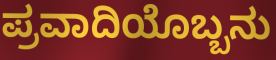
ಪ್ರವಾದಿಯೊಬ್ಬನು